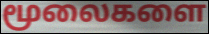
மூலைகளை